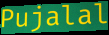
Pujalal